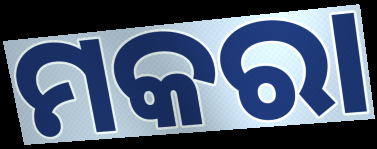
ମକରା